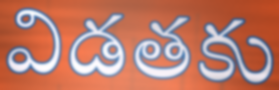
విడతకు